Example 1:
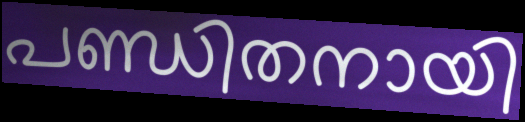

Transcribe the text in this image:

പണ്ഡിതനായി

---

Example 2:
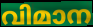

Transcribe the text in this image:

വിമാന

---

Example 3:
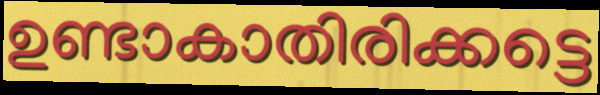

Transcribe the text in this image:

ഉണ്ടാകാതിരിക്കട്ടെ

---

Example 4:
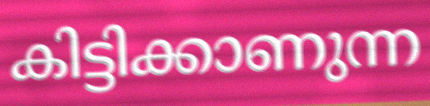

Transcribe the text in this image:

കിട്ടിക്കാണുന്ന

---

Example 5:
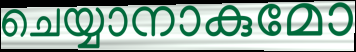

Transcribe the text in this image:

ചെയ്യാനാകുമോ